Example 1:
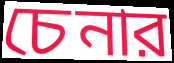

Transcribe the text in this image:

চেনার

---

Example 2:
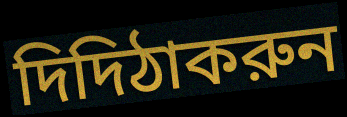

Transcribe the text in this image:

দিদিঠাকরুন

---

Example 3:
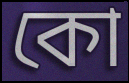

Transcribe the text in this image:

কো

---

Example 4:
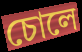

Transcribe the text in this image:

চোলে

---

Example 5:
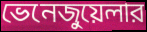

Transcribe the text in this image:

ভেনেজুয়েলার